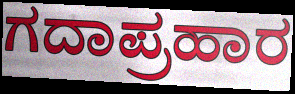
ಗದಾಪ್ರಹಾರ